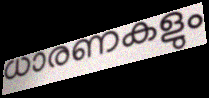
ധാരണകളും